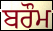
ਬਰੌਮ